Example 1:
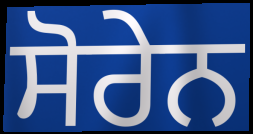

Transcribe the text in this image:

ਸੋਰੇਨ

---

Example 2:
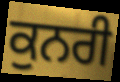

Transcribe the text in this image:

ਕੁਨਰੀ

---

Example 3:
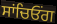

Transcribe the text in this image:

ਸਾਂਚਿਓਂਗ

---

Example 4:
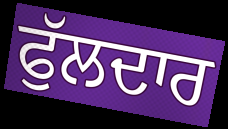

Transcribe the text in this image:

ਫੁੱਲਦਾਰ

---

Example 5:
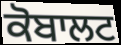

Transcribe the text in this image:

ਕੋਬਾਲਟ